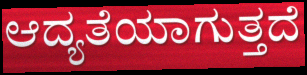
ಆದ್ಯತೆಯಾಗುತ್ತದೆ